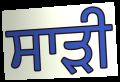
ਸਾੜੀ